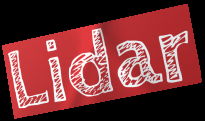
Lidar